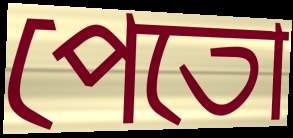
পেতো